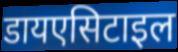
डायएसिटाइल